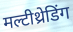
मल्टीथ्रेडिंग